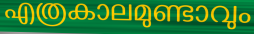
എത്രകാലമുണ്ടാവും